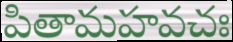
పితామహవచః